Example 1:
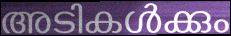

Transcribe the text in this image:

അടികൾക്കും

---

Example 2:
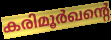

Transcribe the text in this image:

കരിമൂർഖന്റെ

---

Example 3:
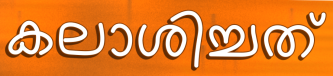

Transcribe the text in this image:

കലാശിച്ചത്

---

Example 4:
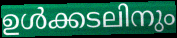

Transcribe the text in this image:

ഉൾക്കടലിനും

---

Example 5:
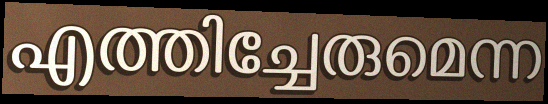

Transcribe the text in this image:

എത്തിച്ചേരുമെന്ന